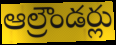
ఆల్రౌండర్లు